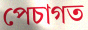
পেচাগত